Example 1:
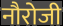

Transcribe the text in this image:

नौरोजी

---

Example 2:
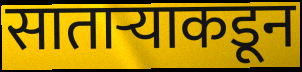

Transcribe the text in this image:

साताऱ्याकडून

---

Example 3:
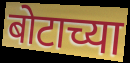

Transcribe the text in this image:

बोटाच्या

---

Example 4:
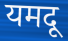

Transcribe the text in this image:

यमदू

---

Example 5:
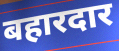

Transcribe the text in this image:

बहारदार